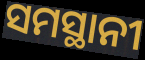
ସମସ୍ଥାନୀ